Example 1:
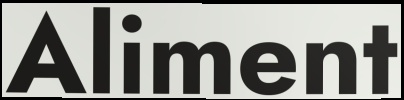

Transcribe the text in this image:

Aliment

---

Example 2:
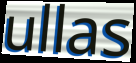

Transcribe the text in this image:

ullas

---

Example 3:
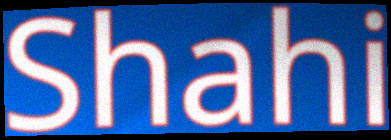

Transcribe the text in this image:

Shahi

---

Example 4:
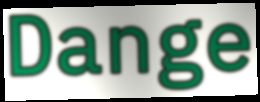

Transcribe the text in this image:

Dange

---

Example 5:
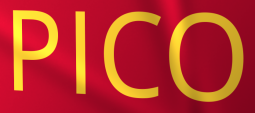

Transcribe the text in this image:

PICO